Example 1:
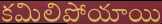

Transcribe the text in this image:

కమిలిపోయాయి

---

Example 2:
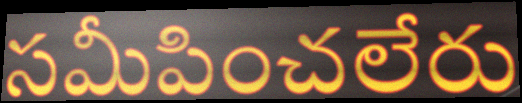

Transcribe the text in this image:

సమీపించలేరు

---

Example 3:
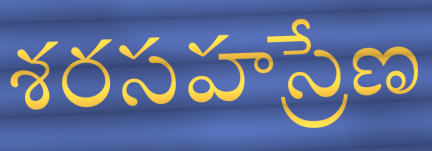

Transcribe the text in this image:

శరసహస్రేణ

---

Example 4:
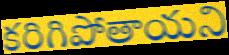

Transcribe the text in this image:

కరిగిపోతాయని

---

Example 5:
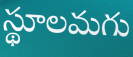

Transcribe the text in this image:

స్థూలమగు